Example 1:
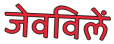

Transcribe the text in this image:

जेवविलें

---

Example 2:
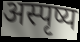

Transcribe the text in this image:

अस्पृष्य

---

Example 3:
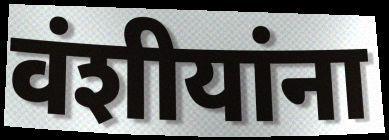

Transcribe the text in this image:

वंशीयांना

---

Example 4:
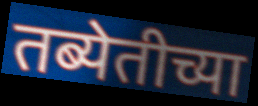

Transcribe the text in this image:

तब्येतीच्या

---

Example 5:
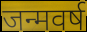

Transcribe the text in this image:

जन्मवर्ष